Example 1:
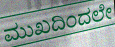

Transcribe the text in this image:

ಮುಖದಿಂದಲೇ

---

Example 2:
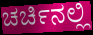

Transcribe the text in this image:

ಚರ್ಚಿನಲ್ಲಿ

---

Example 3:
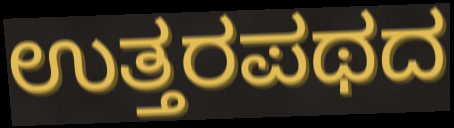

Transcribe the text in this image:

ಉತ್ತರಪಥದ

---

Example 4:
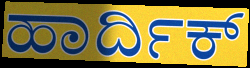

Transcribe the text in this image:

ಹಾರ್ದಿಕ್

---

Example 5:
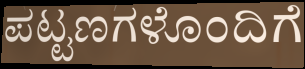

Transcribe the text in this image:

ಪಟ್ಟಣಗಳೊಂದಿಗೆ